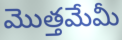
మొత్తమేమీ